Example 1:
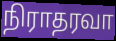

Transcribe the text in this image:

நிராதரவா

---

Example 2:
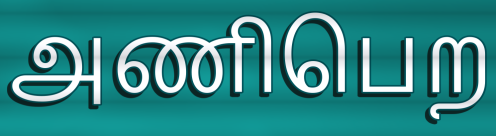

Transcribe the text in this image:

அணிபெற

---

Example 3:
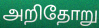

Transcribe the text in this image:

அறிதோறு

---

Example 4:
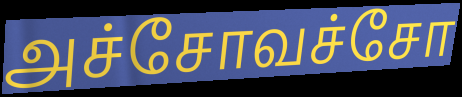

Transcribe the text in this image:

அச்சோவச்சோ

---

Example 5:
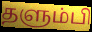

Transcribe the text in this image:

தளும்பி